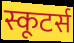
स्कूटर्स